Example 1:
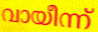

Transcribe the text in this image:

വായീന്ന്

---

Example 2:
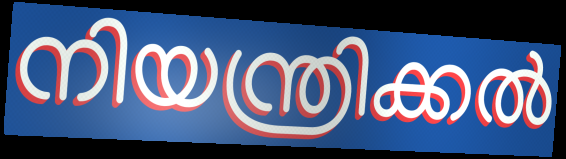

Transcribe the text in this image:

നിയന്ത്രിക്കൽ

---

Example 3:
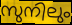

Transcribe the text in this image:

സുനിലും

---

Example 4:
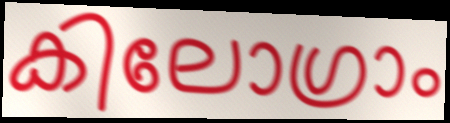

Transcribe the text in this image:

കിലോഗ്രാം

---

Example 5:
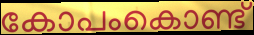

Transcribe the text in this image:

കോപംകൊണ്ട്